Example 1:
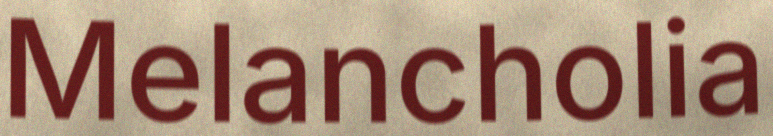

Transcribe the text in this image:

Melancholia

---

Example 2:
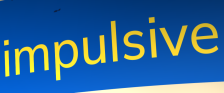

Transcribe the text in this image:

impulsive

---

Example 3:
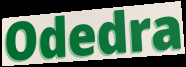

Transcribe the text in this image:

Odedra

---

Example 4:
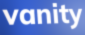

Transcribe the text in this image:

vanity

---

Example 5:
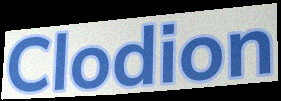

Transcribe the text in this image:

Clodion